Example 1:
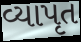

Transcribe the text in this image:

વ્યાપૃત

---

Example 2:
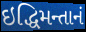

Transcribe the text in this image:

ઇદ્ધિમન્તાનં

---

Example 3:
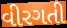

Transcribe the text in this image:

વીરગતી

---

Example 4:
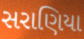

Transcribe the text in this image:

સરાણિયા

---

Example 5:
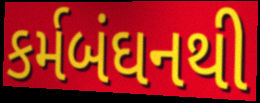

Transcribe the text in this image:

કર્મબંઘનથી